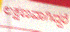
ಲಕ್ಷಣವಾಗಿದ್ದರೆ